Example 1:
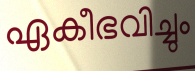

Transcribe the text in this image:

ഏകീഭവിച്ചും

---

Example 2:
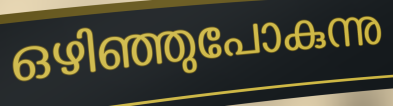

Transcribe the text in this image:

ഒഴിഞ്ഞുപോകുന്നു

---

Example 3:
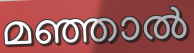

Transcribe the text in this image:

മഞ്ഞാൽ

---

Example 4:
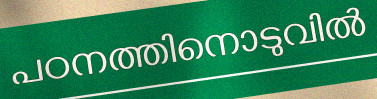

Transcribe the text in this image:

പഠനത്തിനൊടുവിൽ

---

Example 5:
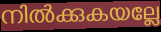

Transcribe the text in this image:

നിൽക്കുകയല്ലേ